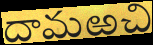
దామఱచి